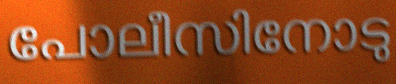
പോലീസിനോടു